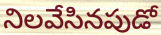
నిలవేసినపుడో